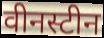
वीनस्टीन